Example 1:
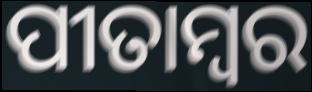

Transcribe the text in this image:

ପୀତାମ୍ୱର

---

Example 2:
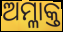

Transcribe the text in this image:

ଅମ୍ଳାକ୍ତ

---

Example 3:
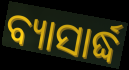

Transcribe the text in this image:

ବ୍ୟାସାର୍ଦ୍ଧ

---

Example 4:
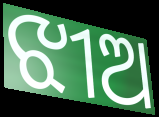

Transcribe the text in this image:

ଝୀଅ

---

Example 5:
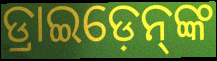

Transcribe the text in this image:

ଡ୍ରାଇଡ଼େନ୍‌ଙ୍କ